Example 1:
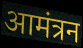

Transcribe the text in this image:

आमंत्रन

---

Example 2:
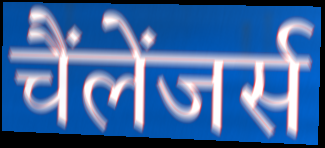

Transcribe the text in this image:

चैंलेंजर्स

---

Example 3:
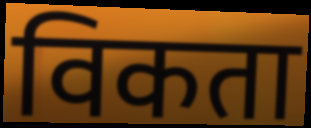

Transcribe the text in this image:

विकता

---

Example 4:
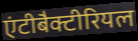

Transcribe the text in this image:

एंटीबैक्टीरियल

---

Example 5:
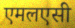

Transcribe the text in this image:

एमलएसी